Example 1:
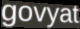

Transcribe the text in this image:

govyat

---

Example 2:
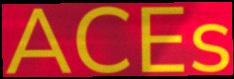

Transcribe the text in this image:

ACEs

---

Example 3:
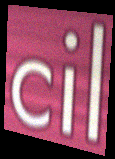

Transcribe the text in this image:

cil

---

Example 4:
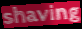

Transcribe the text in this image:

shaving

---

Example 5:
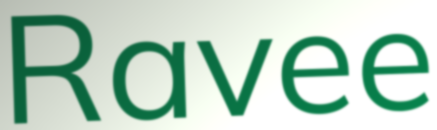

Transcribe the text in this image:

Ravee